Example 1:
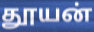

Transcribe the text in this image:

தூயன்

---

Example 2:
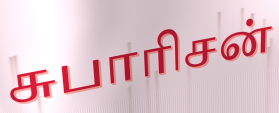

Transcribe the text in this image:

சுபாரிசன்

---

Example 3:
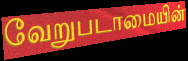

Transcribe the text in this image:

வேறுபடாமையின்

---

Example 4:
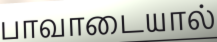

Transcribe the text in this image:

பாவாடையால்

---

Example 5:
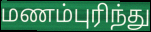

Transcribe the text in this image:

மணம்புரிந்து